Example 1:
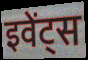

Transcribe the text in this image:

इवेंट्स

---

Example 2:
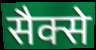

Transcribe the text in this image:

सैक्से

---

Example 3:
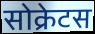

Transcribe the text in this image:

सोक्रेटस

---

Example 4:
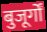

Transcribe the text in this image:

बुजूर्गों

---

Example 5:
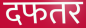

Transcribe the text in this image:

दफतर